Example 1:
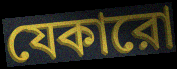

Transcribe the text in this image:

যেকারো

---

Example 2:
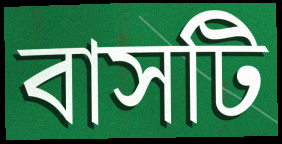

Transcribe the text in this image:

বাসটি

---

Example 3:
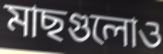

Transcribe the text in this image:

মাছগুলোও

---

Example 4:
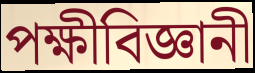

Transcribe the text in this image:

পক্ষীবিজ্ঞানী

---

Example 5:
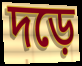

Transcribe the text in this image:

দড়ে